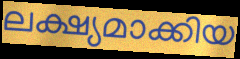
ലക്ഷ്യമാക്കിയ